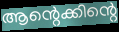
ആന്റെക്കിന്റെ